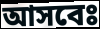
আসবেঃ